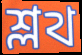
শ্লথ